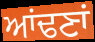
ਆਂਢਣਾਂ